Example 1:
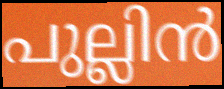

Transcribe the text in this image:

പുല്ലിൻ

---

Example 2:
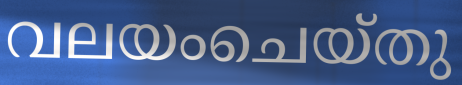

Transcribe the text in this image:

വലയംചെയ്തു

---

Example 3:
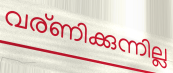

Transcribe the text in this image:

വര്ണിക്കുന്നില്ല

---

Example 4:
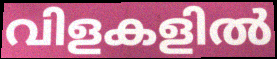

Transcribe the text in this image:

വിളകളിൽ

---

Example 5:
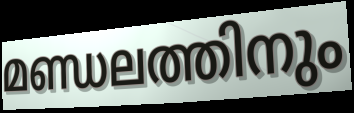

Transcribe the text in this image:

മണ്ഡലത്തിനും